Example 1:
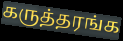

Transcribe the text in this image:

கருத்தரங்க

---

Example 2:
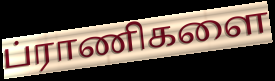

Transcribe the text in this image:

ப்ராணிகளை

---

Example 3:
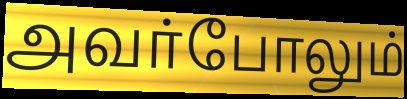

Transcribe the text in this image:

அவர்போலும்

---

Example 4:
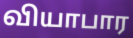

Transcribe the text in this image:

வியாபார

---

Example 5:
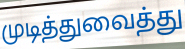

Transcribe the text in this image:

முடித்துவைத்து